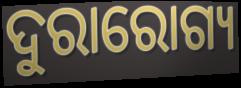
ଦୁରାରୋଗ୍ୟ